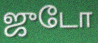
ஜுடோ